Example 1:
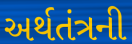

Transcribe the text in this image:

અર્થતંત્રની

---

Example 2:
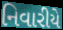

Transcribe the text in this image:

નિવારીયે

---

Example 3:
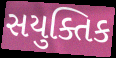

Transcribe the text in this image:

સયુક્તિક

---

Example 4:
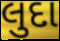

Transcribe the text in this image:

લુદા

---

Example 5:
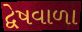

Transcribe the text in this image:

દ્વેષવાળા